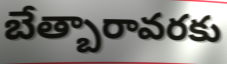
బేత్బారావరకు